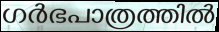
ഗർഭപാത്രത്തിൽ